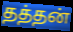
தத்தன்